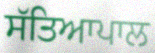
ਸੱਤਿਆਪਾਲ